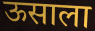
ऊसाला